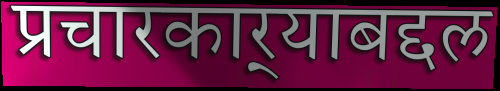
प्रचारकार्याबद्दल